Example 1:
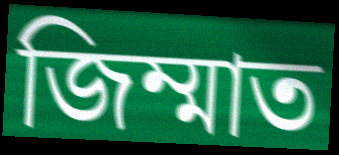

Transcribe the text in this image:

জিম্মাত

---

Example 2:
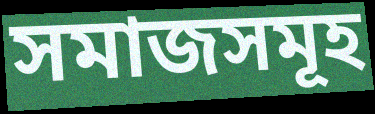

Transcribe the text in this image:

সমাজসমূহ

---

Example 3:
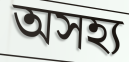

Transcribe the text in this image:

অসহ্য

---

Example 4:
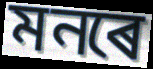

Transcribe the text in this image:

মনৰে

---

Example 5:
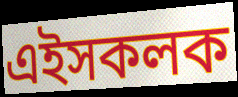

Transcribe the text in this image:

এইসকলক